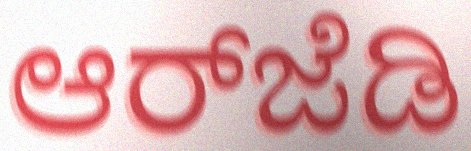
ಆರ್‌ಜೆಡಿ